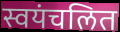
स्वयंचलित